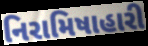
નિરામિષાહારી